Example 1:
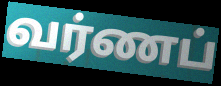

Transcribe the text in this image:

வர்ணப்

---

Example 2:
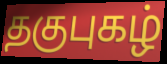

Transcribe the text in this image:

தகுபுகழ்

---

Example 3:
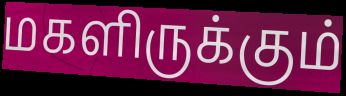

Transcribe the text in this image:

மகளிருக்கும்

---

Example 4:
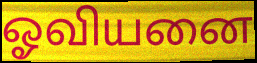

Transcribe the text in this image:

ஓவியனை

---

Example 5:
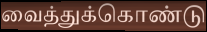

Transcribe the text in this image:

வைத்துக்கொண்டு